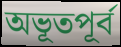
অভূতপূৰ্ব